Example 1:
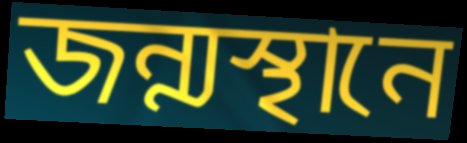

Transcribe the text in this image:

জন্মস্থানে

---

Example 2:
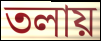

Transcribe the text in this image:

তলায়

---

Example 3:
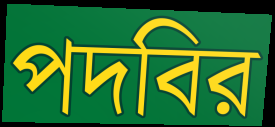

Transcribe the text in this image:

পদবির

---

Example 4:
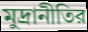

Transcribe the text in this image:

মুদ্রানীতির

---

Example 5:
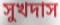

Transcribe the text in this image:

সুখদাস